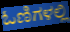
ಓಣಿಗಳಲ್ಲಿ